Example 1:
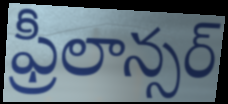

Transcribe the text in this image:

ఫ్రీలాన్సర్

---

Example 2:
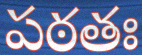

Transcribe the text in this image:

పఠతః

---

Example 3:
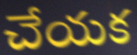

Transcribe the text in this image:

చేయక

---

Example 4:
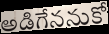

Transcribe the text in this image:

అడిగేననుకో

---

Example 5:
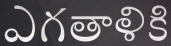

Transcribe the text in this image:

ఎగతాళికి